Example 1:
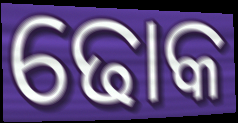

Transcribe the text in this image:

ଢୋକ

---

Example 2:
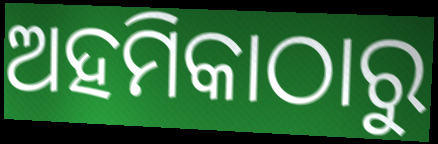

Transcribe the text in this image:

ଅହମିକାଠାରୁ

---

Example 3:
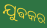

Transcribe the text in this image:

ଯୁଵକର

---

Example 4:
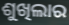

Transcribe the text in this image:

ଶୁଖିଲାର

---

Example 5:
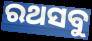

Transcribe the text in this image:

ରଥସବୁ